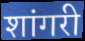
शांगरी